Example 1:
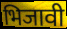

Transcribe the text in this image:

भिजावी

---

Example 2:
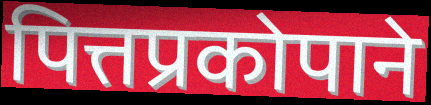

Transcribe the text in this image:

पित्तप्रकोपाने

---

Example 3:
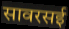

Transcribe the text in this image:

सावरसई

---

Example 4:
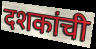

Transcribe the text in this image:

दशकांची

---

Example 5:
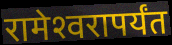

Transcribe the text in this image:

रामेश्वरापर्यंत